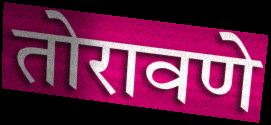
तोरावणे